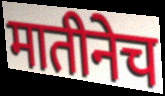
मातीनेच